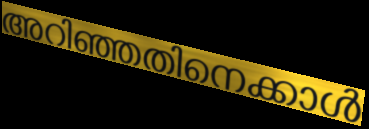
അറിഞ്ഞതിനെക്കാൾ